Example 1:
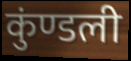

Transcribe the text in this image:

कुंण्डली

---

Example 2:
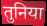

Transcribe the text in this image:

तुनिया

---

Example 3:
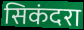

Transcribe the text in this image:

सिकंदरा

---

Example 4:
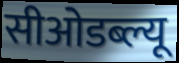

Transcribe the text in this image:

सीओडब्ल्यू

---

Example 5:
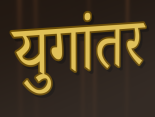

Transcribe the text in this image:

युगांतर